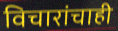
विचारांचाही